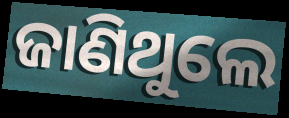
ଜାଣିଥୁଲେ